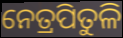
ନେତ୍ରପିତୁଳି